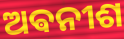
ଅଵନୀଶ